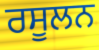
ਰਸੂਲਨ